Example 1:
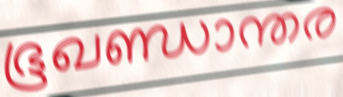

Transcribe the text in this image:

ഭൂഖണ്ഡാന്തര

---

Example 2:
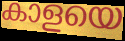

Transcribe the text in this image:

കാളയെ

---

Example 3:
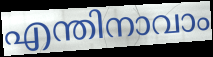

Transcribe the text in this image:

എന്തിനാവാം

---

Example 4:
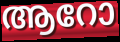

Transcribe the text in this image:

ആറോ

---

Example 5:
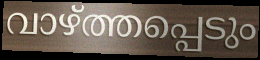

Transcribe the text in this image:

വാഴ്ത്തപ്പെടും